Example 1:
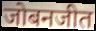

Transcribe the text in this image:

जोबनजीत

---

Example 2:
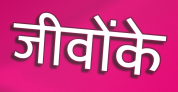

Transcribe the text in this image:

जीवोंके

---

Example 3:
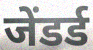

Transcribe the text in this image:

जेंडर्ड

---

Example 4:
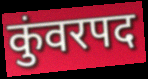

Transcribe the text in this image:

कुंवरपद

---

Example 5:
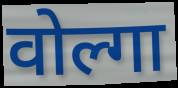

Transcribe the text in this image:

वोल्गा